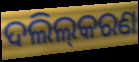
ଦଲିଲ୍‌କରଣ